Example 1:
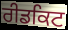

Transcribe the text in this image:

ਰੀਡਕਿਟ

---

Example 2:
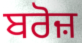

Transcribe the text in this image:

ਬਰੋਜ਼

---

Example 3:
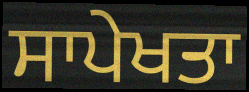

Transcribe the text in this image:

ਸਾਪੇਖਤਾ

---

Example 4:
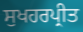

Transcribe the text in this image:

ਸੁਖਹਰਪ੍ਰੀਤ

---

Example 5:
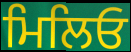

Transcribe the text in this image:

ਮਿਲਿਓ